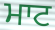
ਮਾਟ